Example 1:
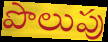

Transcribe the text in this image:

పొలుపు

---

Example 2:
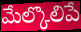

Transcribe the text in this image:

మేల్కొలిపే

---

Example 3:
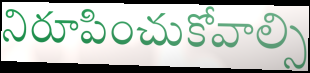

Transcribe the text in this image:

నిరూపించుకోవాల్సి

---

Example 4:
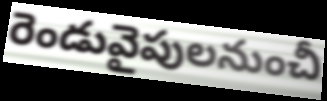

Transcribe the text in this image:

రెండువైపులనుంచీ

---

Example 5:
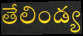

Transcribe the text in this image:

తేలిండ్య